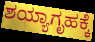
ಶಯ್ಯಾಗೃಹಕ್ಕೆ